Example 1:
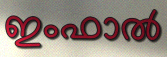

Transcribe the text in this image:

ഇംഫാൽ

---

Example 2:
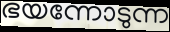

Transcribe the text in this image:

ഭയന്നോടുന്ന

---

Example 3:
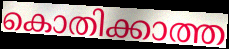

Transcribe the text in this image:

കൊതിക്കാത്ത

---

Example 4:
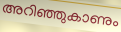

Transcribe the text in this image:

അറിഞ്ഞുകാണും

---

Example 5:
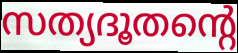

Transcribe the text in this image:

സത്യദൂതന്റെ